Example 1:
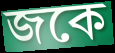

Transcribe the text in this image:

জকে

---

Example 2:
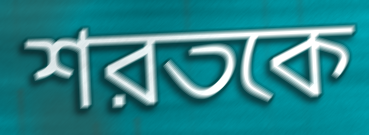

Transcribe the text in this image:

শরতকে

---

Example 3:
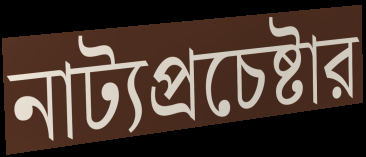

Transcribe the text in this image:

নাট্যপ্রচেষ্টার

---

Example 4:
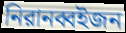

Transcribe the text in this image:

নিরানব্বইজন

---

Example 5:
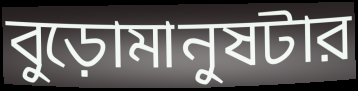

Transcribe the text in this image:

বুড়োমানুষটার